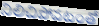
నిలిచిపోవటంతో